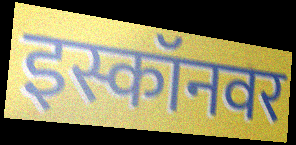
इस्कॉनवर